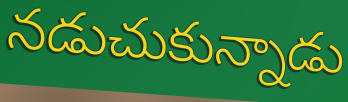
నడుచుకున్నాడు